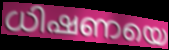
ധിഷണയെ